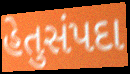
હેતુસંપદા